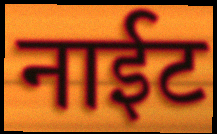
नाईट